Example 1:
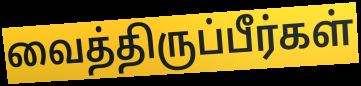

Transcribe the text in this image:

வைத்திருப்பீர்கள்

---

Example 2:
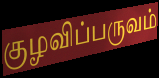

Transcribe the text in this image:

குழவிப்பருவம்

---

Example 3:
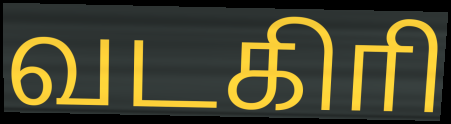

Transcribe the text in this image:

வடகிரி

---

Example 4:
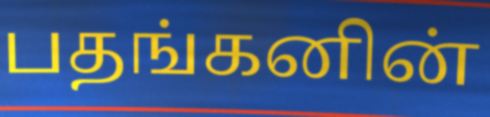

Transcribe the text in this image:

பதங்கனின்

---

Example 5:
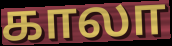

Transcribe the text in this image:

காலா